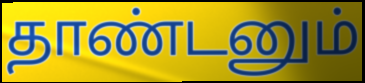
தாண்டனும்